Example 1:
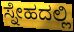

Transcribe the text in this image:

ಸ್ನೇಹದಲ್ಲಿ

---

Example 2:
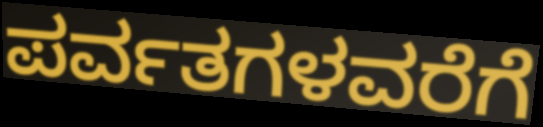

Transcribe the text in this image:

ಪರ್ವತಗಳವರೆಗೆ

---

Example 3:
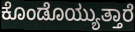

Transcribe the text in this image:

ಕೊಂಡೊಯ್ಯುತ್ತಾರೆ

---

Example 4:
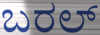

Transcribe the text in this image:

ಬರಲ್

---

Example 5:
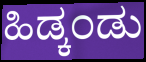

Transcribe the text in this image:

ಹಿಡ್ಕಂಡು